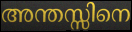
അന്തസ്സിനെ